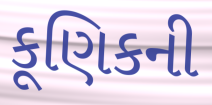
કૂણિકની